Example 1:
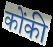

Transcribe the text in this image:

कोंकी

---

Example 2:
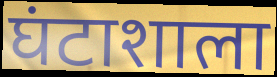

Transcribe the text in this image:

घंटाशाला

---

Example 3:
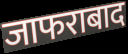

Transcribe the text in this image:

जाफराबाद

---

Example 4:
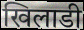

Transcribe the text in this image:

खिलाडी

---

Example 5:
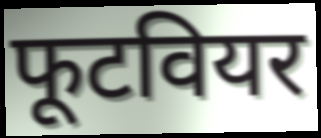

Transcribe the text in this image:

फूटवियर